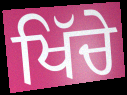
ਖਿੱਚੇ